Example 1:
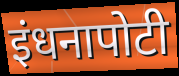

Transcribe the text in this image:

इंधनापोटी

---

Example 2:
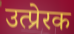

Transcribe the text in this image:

उत्प्रेरक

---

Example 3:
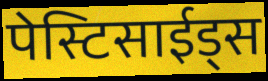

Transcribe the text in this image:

पेस्टिसाईड्स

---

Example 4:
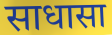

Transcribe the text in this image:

साधासा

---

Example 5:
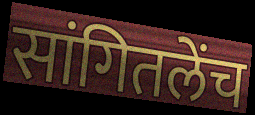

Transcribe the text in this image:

सांगितलेंच